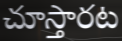
చూస్తారట